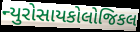
ન્યુરોસાયકોલોજિકલ